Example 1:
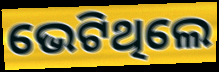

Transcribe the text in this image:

ଭେଟିଥିଲେ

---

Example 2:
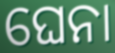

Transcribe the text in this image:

ଘେନା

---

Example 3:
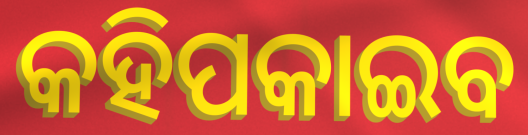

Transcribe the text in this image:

କହିପକାଇବ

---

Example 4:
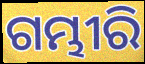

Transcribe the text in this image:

ଗମ୍ଭୀରି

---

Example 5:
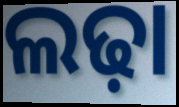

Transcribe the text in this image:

ଲଢ଼ା